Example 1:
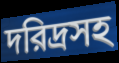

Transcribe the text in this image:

দরিদ্রসহ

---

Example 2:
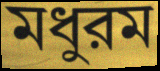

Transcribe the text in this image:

মধুরম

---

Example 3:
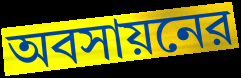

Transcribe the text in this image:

অবসায়নের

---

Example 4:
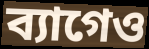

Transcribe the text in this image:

ব্যাগেও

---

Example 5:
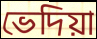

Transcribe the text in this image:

ভেদিয়া